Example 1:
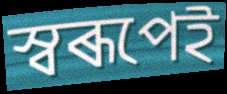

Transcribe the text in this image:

স্বৰূপেই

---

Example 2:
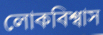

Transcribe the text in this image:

লোকবিশ্বাস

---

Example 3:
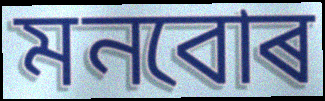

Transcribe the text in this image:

মনবোৰ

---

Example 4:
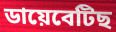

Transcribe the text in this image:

ডায়েবেটিছ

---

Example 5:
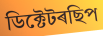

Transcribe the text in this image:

ডিক্টেটৰছিপ